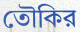
তৌকির